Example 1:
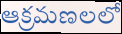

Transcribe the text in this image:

ఆక్రమణలలో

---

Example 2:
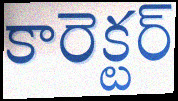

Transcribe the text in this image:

కారెక్టర్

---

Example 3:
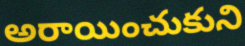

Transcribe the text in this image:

అరాయించుకుని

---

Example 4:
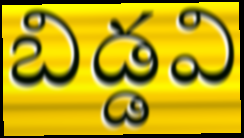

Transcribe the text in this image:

బిడ్డవి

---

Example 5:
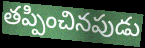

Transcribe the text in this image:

తప్పించినపుడు